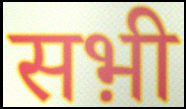
सभ़ी